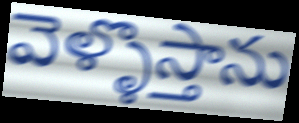
వెళ్ళొస్తాను